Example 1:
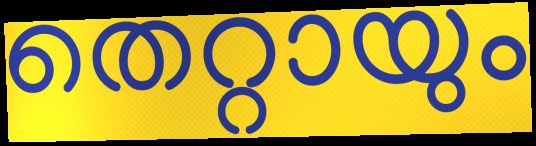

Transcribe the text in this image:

തെറ്റായും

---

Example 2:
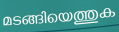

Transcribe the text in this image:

മടങ്ങിയെത്തുക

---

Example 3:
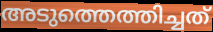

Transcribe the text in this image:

അടുത്തെത്തിച്ചത്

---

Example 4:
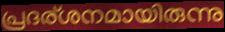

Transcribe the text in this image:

പ്രദര്ശനമായിരുന്നു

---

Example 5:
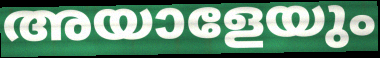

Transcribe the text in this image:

അയാളേയും